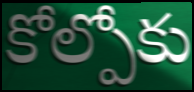
కోల్పోకు